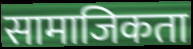
सामाजिकता